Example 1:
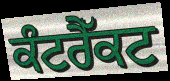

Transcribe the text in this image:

ਕੰਟਰੈੱਕਟ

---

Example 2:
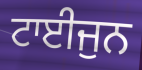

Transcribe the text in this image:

ਟਾਈਜੁਨ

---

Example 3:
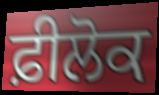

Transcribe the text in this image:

ਫ਼ੀਲੋਕ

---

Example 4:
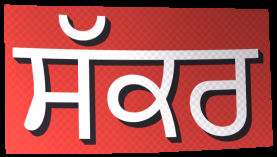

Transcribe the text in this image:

ਸੱਕਰ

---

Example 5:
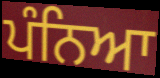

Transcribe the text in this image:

ਪੰਨਿਆ